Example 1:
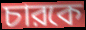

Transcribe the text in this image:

চারকে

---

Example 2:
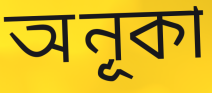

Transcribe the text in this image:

অনূকা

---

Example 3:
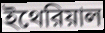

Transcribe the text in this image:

ইথেরিয়াল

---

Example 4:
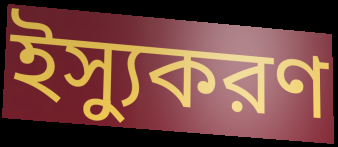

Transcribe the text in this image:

ইস্যুকরণ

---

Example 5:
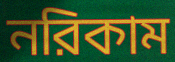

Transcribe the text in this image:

নরিকাম